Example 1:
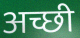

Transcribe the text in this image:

अच्‍छी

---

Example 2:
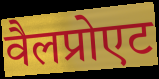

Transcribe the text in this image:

वैलप्रोएट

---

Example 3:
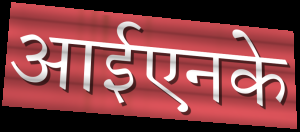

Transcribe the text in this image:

आईएनके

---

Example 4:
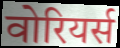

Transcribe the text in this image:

वोरियर्स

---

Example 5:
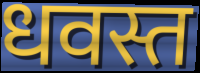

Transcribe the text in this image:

धवस्त